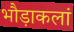
भौड़ाकलां